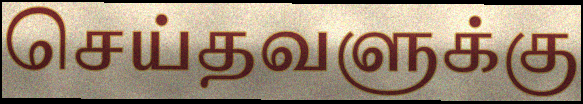
செய்தவளுக்கு